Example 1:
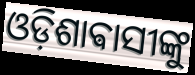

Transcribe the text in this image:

ଓଡ଼ିଶାଵାସୀଙ୍କୁ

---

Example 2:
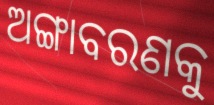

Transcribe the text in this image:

ଅଙ୍ଗାବରଣକୁ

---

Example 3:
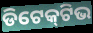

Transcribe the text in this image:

ଡିଟେକ୍‍ଟିଭ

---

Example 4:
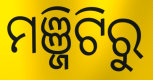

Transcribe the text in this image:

ମଞ୍ଜିଟିରୁ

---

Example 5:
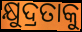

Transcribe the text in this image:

କ୍ଷୁଦ୍ରତାକୁ